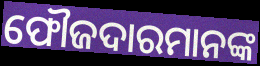
ଫୌଜଦାରମାନଙ୍କ